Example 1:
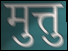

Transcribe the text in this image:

मुत्तु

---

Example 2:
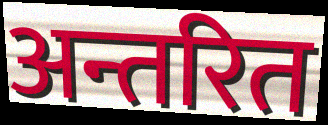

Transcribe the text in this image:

अन्तरित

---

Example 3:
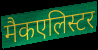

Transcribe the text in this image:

मैकएलिस्टर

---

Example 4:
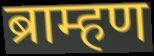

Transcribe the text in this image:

ब्राम्हण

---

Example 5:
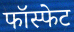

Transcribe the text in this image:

फॉस्फेट